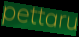
pettaru